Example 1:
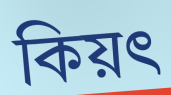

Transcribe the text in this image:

কিয়ৎ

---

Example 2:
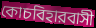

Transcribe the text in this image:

কোচবিহারবাসী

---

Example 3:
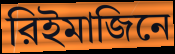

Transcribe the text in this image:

রিইমাজিনে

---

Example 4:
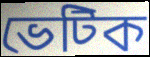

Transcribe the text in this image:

ভেট্কি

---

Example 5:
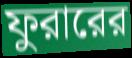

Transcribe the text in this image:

ফুরারের